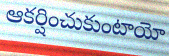
ఆకర్షించుకుంటాయో